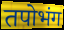
तपोभंग